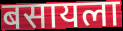
बसायला